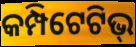
କମ୍ପିଟେଟିଭ୍